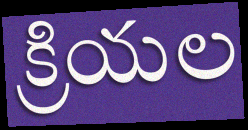
క్రియల